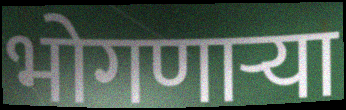
भोगणाऱ्या